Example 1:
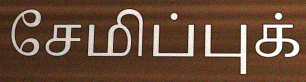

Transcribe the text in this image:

சேமிப்புக்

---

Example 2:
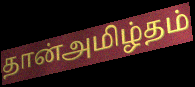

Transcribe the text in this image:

தான்அமிழ்தம்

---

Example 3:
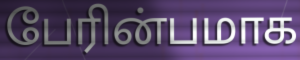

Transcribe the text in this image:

பேரின்பமாக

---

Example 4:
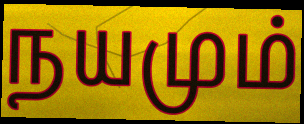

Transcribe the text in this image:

நயமும்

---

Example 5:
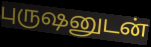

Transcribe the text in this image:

புருஷனுடன்